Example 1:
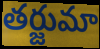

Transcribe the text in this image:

తర్జుమా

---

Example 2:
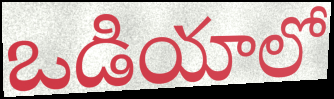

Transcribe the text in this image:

ఒడియాలో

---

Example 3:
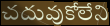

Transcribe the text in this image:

చదువుకోలేని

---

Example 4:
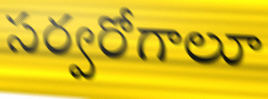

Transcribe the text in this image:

సర్వరోగాలూ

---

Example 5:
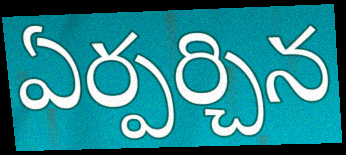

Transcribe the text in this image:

ఏర్పర్చిన